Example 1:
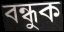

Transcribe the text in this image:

বন্ধুক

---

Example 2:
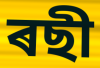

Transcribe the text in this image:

ৰছী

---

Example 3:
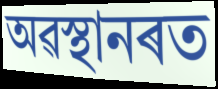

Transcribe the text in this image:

অৱস্থানৰত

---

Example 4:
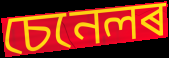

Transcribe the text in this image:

চেনেলৰ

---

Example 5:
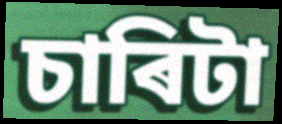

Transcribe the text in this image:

চাৰিটা